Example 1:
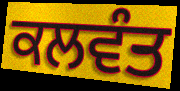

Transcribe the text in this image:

ਕਲਵੰਤ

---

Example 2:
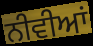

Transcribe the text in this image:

ਨੀਵੀਆਂ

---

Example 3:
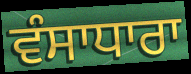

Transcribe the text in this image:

ਵੰਸਾਧਾਰਾ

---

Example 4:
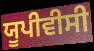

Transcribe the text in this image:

ਯੂਪੀਵੀਸੀ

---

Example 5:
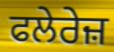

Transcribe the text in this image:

ਫਲੇਰੇਜ਼